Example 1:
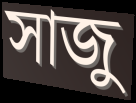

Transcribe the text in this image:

সাজু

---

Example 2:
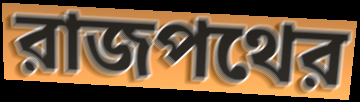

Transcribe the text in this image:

রাজপথের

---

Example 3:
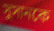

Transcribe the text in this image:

সুসানকে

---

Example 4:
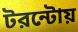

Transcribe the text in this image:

টরন্টোয়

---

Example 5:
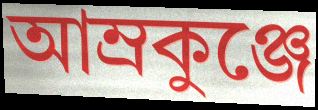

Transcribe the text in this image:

আম্রকুঞ্জে